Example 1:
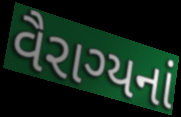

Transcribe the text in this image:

વૈરાગ્યનાં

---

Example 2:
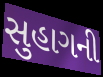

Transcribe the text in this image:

સુહાગની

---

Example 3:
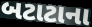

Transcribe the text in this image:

બટાટાના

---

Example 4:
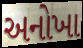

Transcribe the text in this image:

અનોખા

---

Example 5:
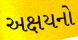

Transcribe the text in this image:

અક્ષયનો